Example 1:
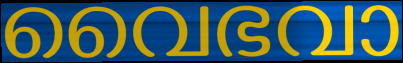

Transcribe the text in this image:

വൈഭവാ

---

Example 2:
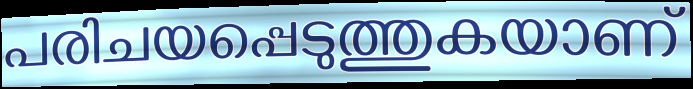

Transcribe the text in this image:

പരിചയപ്പെടുത്തുകയാണ്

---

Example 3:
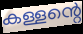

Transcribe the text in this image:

കള്ളന്റെ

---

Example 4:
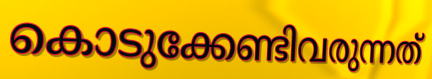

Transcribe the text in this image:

കൊടുക്കേണ്ടിവരുന്നത്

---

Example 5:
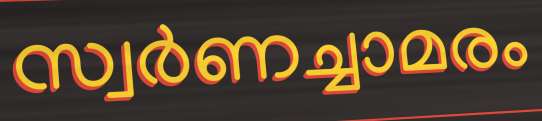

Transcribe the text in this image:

സ്വർണച്ചാമരം